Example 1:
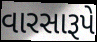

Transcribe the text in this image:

વારસારૂપે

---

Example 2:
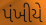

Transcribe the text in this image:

પંખીયે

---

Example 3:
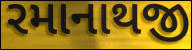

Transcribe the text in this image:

રમાનાથજી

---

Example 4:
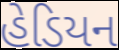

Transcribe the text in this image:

હેડિયન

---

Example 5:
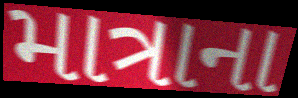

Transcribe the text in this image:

માત્રાના